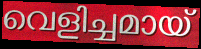
വെളിച്ചമായ്